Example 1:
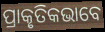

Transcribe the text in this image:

ପ୍ରାକୃତିକଭାବେ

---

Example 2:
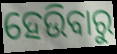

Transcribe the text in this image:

ହେଉିବାରୁ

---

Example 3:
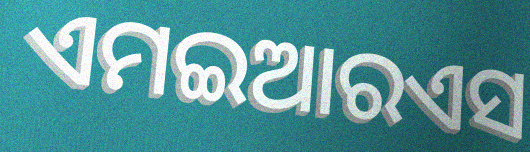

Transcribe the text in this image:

ଏମଇଆରଏସ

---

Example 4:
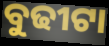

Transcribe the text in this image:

ବୁଢୀଟା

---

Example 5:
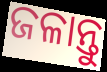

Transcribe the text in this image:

ଜଳାନ୍ତୁ